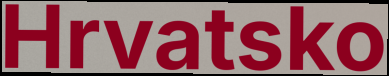
Hrvatsko